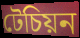
টেচিয়ন